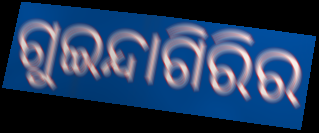
ଗୁଇନ୍ଦାଗିରିର